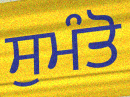
ਸੁਮੰਤੋ